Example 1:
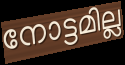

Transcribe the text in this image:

നോട്ടമില്ല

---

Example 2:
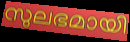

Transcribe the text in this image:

സുലഭമായി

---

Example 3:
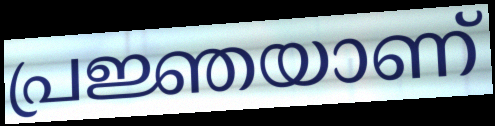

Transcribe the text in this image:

പ്രജ്ഞയാണ്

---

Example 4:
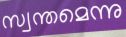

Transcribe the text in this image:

സ്വന്തമെന്നു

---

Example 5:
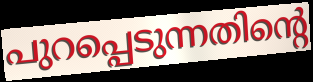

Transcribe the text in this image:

പുറപ്പെടുന്നതിന്റെ